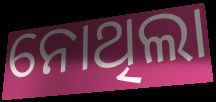
ନୋଥିଲା